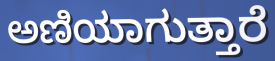
ಅಣಿಯಾಗುತ್ತಾರೆ